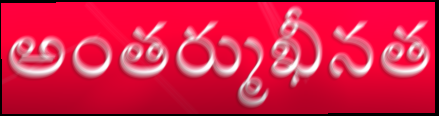
అంతర్ముఖీనత